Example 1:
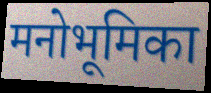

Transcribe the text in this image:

मनोभूमिका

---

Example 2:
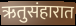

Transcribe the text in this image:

ऋतुसंहारात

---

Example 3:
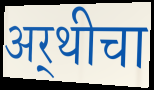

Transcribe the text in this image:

अर्थीचा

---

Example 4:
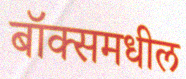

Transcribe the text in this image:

बॉक्समधील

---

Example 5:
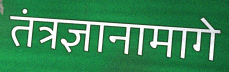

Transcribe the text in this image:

तंत्रज्ञानामागे